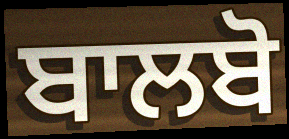
ਬਾਲਬੋ